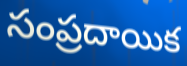
సంప్రదాయిక